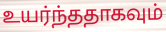
உயர்ந்ததாகவும்